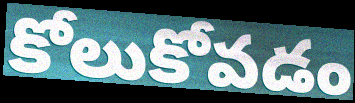
కోలుకోవడం